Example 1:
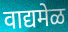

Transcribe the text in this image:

वाद्यमेळ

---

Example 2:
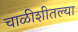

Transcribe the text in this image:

चाळीशीतल्या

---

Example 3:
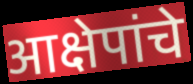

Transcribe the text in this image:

आक्षेपांचे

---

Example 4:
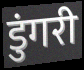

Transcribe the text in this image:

डुंगरी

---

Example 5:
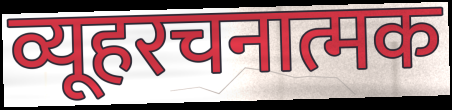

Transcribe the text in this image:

व्यूहरचनात्मक